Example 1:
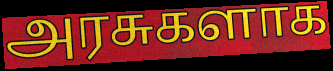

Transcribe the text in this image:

அரசுகளாக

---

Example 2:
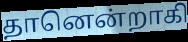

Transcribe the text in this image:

தானென்றாகி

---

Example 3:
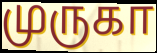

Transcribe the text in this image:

முருகா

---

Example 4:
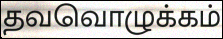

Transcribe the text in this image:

தவவொழுக்கம்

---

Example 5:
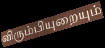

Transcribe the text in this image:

விரும்பியுறையும்